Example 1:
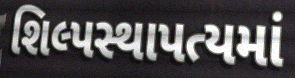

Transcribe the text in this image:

શિલ્પસ્થાપત્યમાં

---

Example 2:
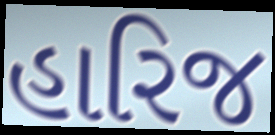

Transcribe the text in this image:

હારિજ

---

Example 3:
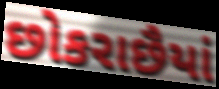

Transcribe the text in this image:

છોકરાછૈયાં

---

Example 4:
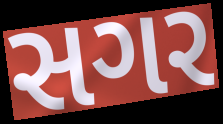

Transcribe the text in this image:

સગર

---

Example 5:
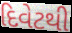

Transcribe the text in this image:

દિવેટથી